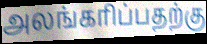
அலங்கரிப்பதற்கு